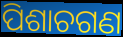
ପିଶାଚଗଣ